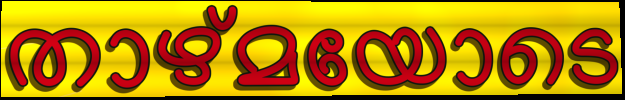
താഴ്മയോടെ